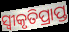
ସ୍ବୀକୃତିପ୍ରାପ୍ତ